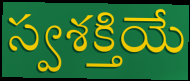
స్వశక్తియే